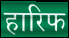
हारिफ